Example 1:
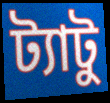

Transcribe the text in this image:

ট্যাটু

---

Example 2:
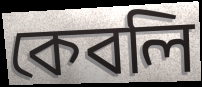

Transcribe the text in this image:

কেবলি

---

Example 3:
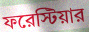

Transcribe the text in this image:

ফরেস্টিয়ার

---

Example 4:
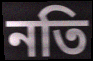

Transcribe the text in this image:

নতি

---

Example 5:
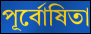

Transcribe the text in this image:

পূর্বোষিতা